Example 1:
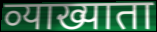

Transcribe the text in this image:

व्‍याख्‍याता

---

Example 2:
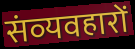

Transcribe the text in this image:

संव्‍यवहारों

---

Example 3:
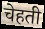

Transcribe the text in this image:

चेहती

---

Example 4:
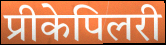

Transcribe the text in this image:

प्रीकेपिलरी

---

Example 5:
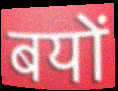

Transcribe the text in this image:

बयों